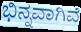
ಭಿನ್ನವಾಗಿವೆ